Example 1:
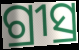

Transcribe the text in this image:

ଗ୍ରୀସ୍ର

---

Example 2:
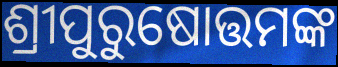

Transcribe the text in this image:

ଶ୍ରୀପୁରୁଷୋତ୍ତମଙ୍କ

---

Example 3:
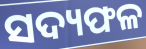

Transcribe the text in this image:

ସଦ୍ୟଫଳ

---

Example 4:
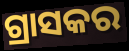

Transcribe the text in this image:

ଗ୍ରାସକର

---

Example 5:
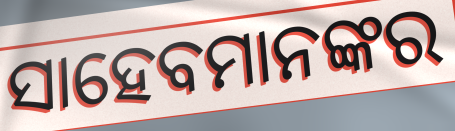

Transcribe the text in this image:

ସାହେବମାନଙ୍କର